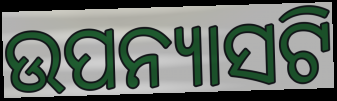
ଉପନ୍ୟାସଟି